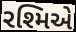
રશ્મિએ